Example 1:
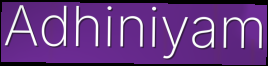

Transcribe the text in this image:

Adhiniyam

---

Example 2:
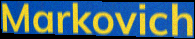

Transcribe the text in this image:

Markovich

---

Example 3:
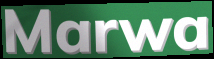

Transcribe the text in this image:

Marwa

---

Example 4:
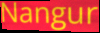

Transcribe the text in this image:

Nangur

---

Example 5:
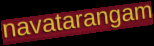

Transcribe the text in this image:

navatarangam